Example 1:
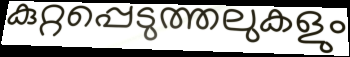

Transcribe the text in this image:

കുറ്റപ്പെടുത്തലുകളും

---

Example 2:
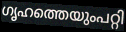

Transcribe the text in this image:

ഗൃഹത്തെയുംപറ്റി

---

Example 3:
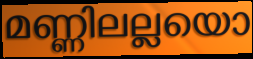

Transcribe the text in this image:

മണ്ണിലല്ലയൊ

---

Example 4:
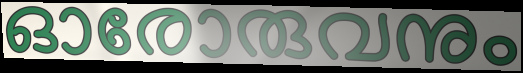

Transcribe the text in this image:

ഓരോരുവനും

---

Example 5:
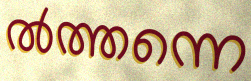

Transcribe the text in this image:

ൽത്തന്നെ